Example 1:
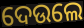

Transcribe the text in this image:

ଦେଉଲେ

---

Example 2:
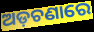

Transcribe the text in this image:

ଅଡ଼ଚଣାରେ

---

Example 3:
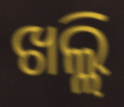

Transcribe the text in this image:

ଖଲ୍ଲି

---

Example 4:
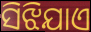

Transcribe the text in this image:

ସିଝିଯାଏ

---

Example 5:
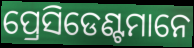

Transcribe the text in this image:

ପ୍ରେସିଡେଣ୍ଟମାନେ